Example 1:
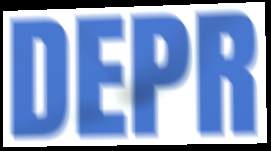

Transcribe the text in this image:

DEPR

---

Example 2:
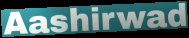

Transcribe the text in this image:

Aashirwad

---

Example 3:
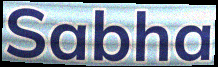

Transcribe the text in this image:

Sabha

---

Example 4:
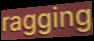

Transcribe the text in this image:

ragging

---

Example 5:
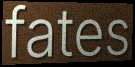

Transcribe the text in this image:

fates